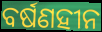
ବର୍ଷଣହୀନ